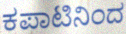
ಕಪಾಟಿನಿಂದ